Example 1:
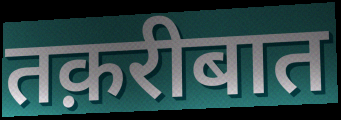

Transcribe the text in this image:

तक़रीबात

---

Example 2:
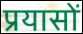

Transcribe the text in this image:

प्रयासों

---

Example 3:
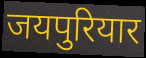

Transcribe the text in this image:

जयपुरियार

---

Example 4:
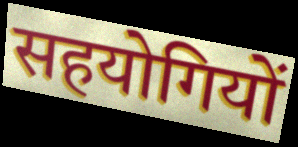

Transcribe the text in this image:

सहयोगियों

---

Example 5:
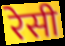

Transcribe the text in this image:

रेसी